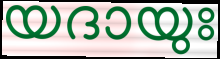
യദായുഃ